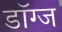
डॉग्ज